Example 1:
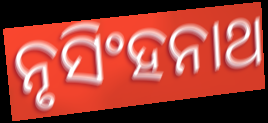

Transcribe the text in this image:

ନୃସିଂହନାଥ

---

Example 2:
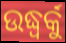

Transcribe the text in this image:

ଉଦ୍ଧ୍ୱର୍କୁ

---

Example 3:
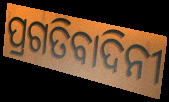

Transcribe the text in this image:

ପ୍ରଗତିବାଦିନୀ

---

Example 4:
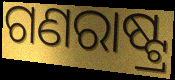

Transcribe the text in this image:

ଗଣରାଷ୍ଟ୍ର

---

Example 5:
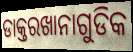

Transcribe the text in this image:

ଡାକ୍ତରଖାନାଗୁଡିକ